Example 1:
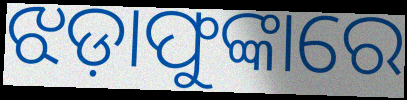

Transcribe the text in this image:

ଝଡ଼ାଫୁଙ୍କାରେ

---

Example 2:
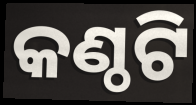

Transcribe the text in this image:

କଣ୍ଠଟି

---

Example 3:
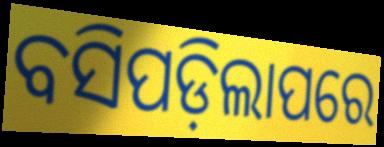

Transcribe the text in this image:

ବସିପଡ଼ିଲାପରେ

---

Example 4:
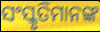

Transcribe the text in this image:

ସଂସ୍କୃତିମାନଙ୍କ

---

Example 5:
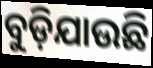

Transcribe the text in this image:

ବୁଡ଼ିଯାଉଛି